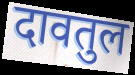
दावतुल